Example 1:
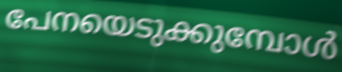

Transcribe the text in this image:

പേനയെടുക്കുമ്പോൾ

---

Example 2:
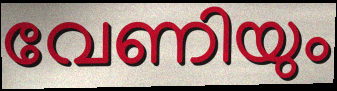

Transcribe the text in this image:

വേണിയും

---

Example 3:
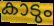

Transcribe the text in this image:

കാടും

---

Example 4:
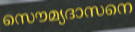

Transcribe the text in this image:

സൌമ്യദാസനെ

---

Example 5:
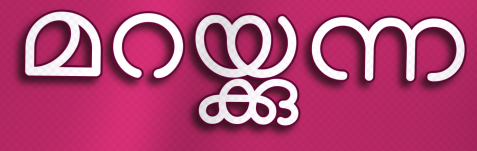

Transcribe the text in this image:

മറയ്ക്കുന്ന